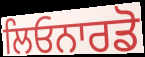
ਲਿਓਨਾਰਡੋ